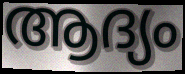
ആദ്യം